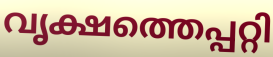
വൃക്ഷത്തെപ്പറ്റി